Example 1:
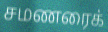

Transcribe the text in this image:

சமணரைக்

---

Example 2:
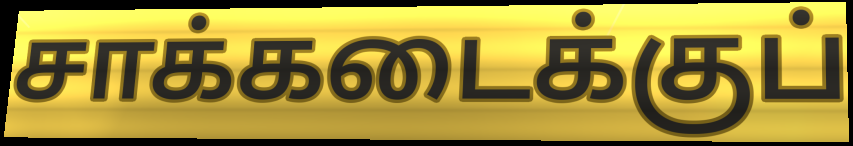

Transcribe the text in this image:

சாக்கடைக்குப்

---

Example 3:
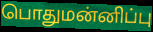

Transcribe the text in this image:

பொதுமன்னிப்பு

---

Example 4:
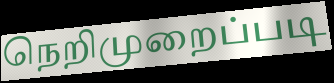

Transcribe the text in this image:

நெறிமுறைப்படி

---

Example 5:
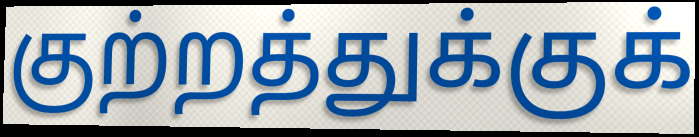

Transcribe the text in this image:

குற்றத்துக்குக்